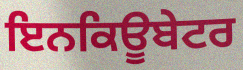
ਇਨਕਿਊਬੇਟਰ